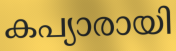
കപ്യാരായി